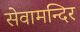
सेवामन्दिर